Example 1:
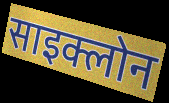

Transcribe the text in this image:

साइक्लोन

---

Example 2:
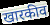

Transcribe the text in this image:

खारकीव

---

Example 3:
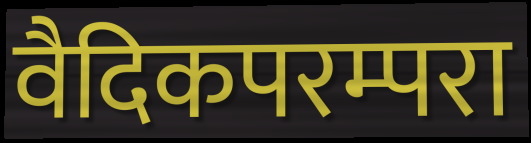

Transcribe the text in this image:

वैदिकपरम्परा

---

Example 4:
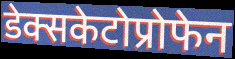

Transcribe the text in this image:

डेक्सकेटोप्रोफेन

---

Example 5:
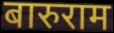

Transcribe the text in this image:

बारुराम